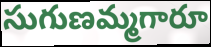
సుగుణమ్మగారూ